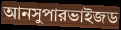
আনসুপারভাইজড